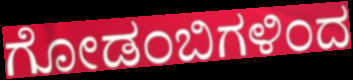
ಗೋಡಂಬಿಗಳಿಂದ